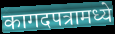
कागदपत्रामध्ये